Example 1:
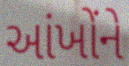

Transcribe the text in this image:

આંખોંને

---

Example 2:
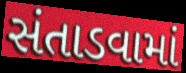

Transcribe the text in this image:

સંતાડવામાં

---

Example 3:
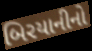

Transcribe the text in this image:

બિરયાનીનો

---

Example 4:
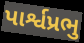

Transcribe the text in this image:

પાર્શ્વપ્રભુ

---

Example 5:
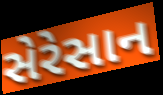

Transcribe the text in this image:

સેરેસાન